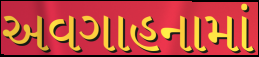
અવગાહનામાં